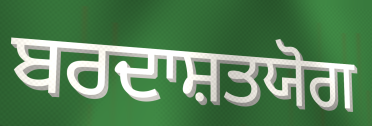
ਬਰਦਾਸ਼ਤਯੋਗ